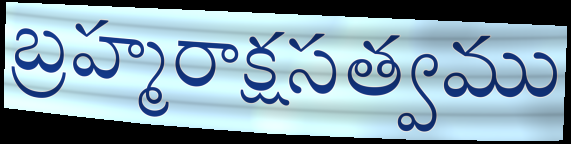
బ్రహ్మరాక్షసత్వము